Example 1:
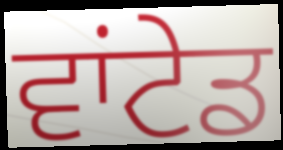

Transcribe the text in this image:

ਵਾਂਟੇਡ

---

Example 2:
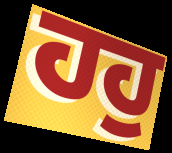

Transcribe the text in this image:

ਹਹੁ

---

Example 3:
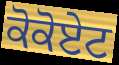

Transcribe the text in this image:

ਕੋਕੋਏਟ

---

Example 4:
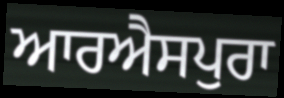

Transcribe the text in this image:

ਆਰਐਸਪੁਰਾ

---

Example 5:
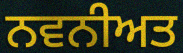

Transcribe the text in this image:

ਨਵਨੀਅਤ